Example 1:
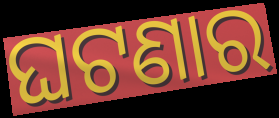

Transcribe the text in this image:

ଘଟଣାର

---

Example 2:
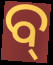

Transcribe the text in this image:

ବ୍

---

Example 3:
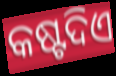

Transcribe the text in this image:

କଷ୍ଟଦିଏ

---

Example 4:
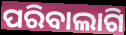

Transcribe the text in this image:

ପରିବାଲାଗି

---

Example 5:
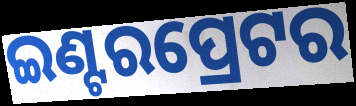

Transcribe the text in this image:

ଇଣ୍ଟରପ୍ରେଟର